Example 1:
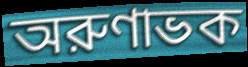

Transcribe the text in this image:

অৰুণাভক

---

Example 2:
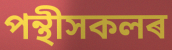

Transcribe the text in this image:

পন্থীসকলৰ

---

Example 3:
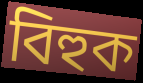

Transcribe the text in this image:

বিহুক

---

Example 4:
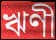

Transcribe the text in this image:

ঋণী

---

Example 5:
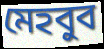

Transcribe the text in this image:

মেহবুব